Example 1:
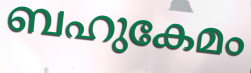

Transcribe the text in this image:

ബഹുകേമം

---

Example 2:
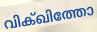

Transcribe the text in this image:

വിക്ഖിത്തോ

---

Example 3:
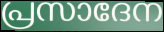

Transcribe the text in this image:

പ്രസാദേന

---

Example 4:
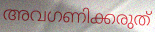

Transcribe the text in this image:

അവഗണിക്കരുത്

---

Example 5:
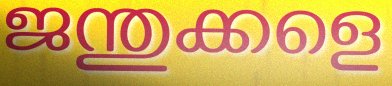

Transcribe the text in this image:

ജന്തുക്കളെ